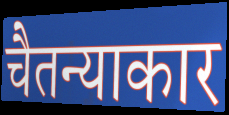
चैतन्याकार